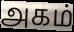
அகம்